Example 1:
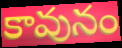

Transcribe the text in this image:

కావునం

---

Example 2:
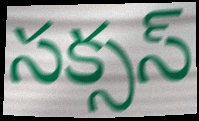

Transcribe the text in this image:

సక్సస్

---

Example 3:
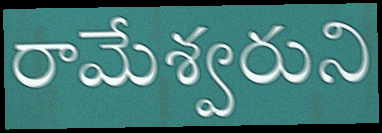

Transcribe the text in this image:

రామేశ్వరుని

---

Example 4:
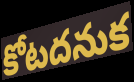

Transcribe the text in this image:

కోటదనుక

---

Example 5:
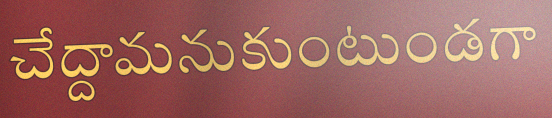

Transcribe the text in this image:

చేద్దామనుకుంటుండగా